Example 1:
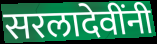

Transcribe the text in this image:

सरलादेवींनी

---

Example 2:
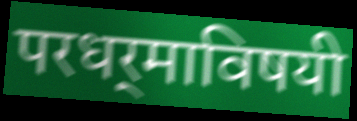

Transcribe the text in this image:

परधर्माविषयी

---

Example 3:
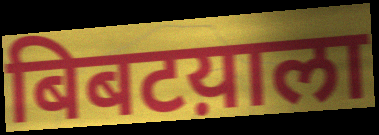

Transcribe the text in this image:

बिबटय़ाला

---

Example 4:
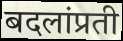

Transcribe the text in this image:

बदलांप्रती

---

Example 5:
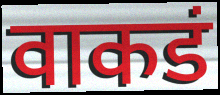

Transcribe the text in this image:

वाकडं